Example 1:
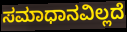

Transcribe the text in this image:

ಸಮಾಧಾನವಿಲ್ಲದೆ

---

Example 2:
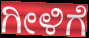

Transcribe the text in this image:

ಗೀಳಿಗೆ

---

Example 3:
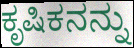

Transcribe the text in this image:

ಕೃಷಿಕನನ್ನು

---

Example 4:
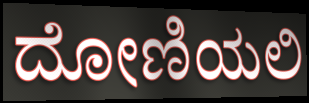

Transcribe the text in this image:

ದೋಣಿಯಲಿ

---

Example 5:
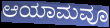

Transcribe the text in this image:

ಆಯಾಮವೂ